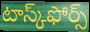
టాస్క్‌ఫోర్స్